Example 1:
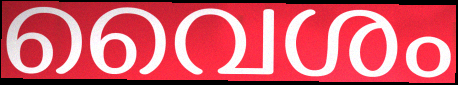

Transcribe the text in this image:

വൈശം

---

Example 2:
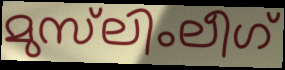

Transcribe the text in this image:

മുസ്‌ലിംലീഗ്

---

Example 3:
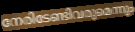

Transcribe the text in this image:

നേരിടേണ്ടിവരുമെന്നും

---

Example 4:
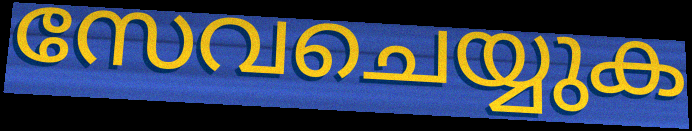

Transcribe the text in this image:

സേവചെയ്യുക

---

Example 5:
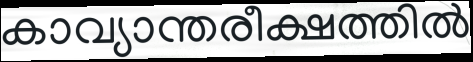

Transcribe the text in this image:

കാവ്യാന്തരീക്ഷത്തിൽ